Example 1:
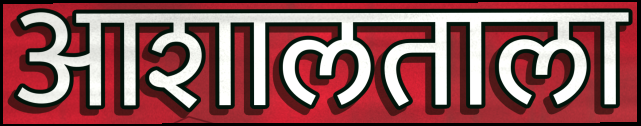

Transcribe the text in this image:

आशालताला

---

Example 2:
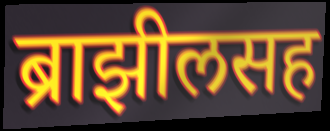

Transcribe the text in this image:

ब्राझीलसह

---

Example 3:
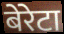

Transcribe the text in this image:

बेरेटा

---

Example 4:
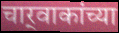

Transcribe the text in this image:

चार्वाकांच्या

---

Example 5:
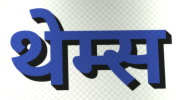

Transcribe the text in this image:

थेम्स